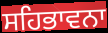
ਸਹਿਭਾਵਨਾ